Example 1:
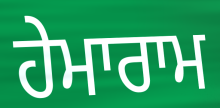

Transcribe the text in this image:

ਹੇਮਾਰਾਮ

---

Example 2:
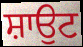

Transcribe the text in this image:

ਸ਼ਾਉਟ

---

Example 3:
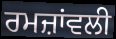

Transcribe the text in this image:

ਰਮਜ਼ਾਂਵਲੀ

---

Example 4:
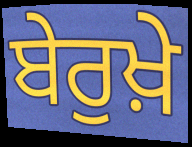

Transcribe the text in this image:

ਬੇਰੁਖ਼ੇ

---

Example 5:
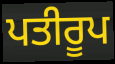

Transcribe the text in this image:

ਪਤੀਰੂਪ